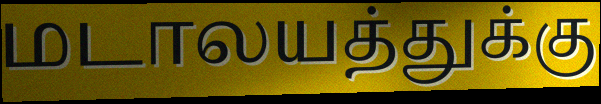
மடாலயத்துக்கு